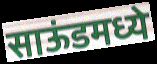
साऊंडमध्ये